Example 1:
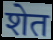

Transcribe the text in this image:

शेत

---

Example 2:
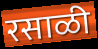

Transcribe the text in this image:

रसाळी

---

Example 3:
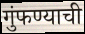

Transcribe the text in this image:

गुंफण्याची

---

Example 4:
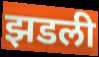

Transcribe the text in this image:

झडली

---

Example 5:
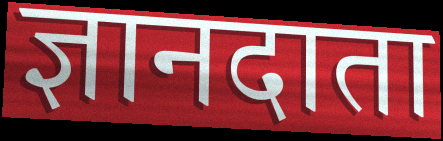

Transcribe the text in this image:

ज्ञानदाता